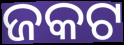
ଜକଟ